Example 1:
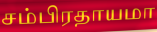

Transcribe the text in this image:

சம்பிரதாயமா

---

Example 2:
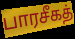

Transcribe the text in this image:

பாரசீகத்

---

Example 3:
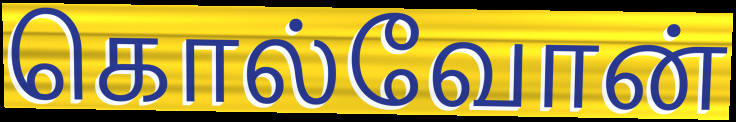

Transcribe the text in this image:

கொல்வோன்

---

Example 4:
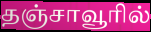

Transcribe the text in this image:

தஞ்சாவூரில்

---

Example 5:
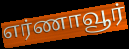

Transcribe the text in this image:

எர்ணாவூர்